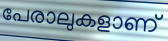
പേരാലുകളാണ്